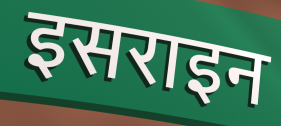
इसराइन